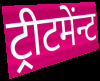
ट्रीटमेंन्ट